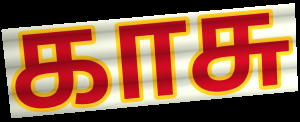
காசு